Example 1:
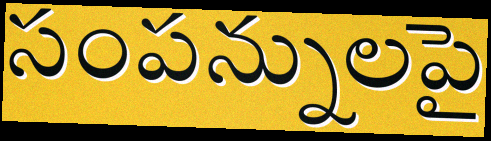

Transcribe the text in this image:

సంపన్నులపై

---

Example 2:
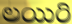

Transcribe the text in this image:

లయిరి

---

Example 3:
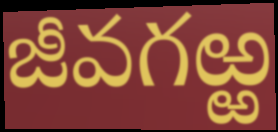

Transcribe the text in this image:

జీవగఱ్ఱ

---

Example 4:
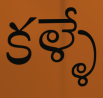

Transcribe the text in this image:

కళ్ళే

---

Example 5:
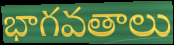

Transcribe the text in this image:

భాగవతాలు